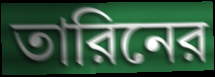
তারিনের